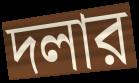
দলার